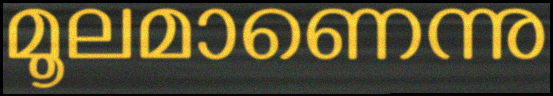
മൂലമാണെന്നു